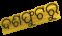
ଦଶଫୁଟରୁ